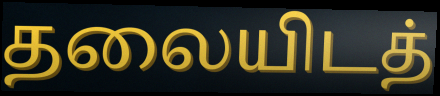
தலையிடத்